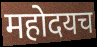
महोदयच